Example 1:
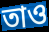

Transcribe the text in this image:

তাও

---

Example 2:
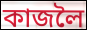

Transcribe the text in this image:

কাজলৈ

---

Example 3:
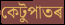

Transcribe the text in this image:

কেটুপাতৰ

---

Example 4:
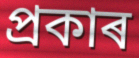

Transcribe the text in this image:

প্ৰকাৰ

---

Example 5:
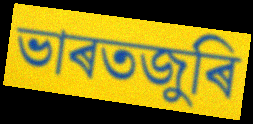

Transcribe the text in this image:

ভাৰতজুৰি